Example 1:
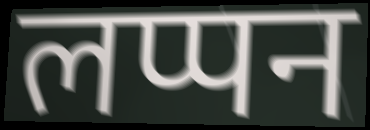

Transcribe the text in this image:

लप्पन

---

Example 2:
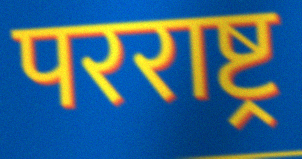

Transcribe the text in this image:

परराष्ट्र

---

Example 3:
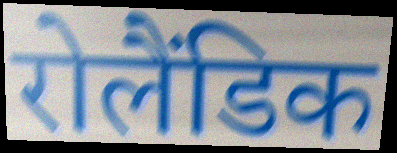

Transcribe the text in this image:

रोलैंडिक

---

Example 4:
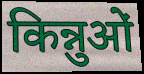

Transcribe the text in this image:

किन्नुओं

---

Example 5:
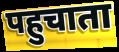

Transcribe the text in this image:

पहुचाता